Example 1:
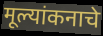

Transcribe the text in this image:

मूल्यांकनाचे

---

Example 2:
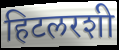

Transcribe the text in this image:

हिटलरशी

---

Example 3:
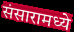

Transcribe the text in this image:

संसारामध्ये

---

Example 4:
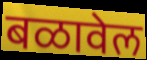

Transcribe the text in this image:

बळावेल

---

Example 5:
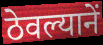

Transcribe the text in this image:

ठेवल्यानें